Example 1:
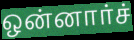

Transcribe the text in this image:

ஒன்னார்ச்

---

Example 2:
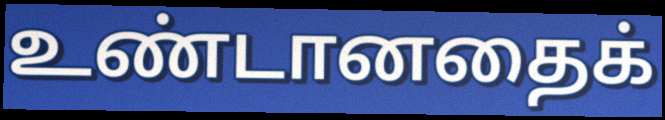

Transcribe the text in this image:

உண்டானதைக்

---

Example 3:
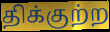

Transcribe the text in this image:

திக்குற்ற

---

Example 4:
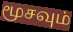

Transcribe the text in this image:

மூசவும்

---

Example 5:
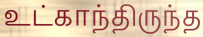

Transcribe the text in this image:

உட்காந்திருந்த